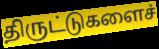
திருட்டுகளைச்